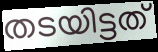
തടയിട്ടത്